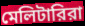
মেলিটারিরা